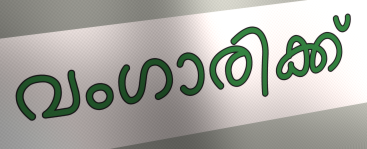
വംഗാരിക്ക്